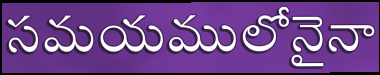
సమయములోనైనా